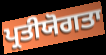
ਪ੍ਰਤੀਯੋਗਤਾ